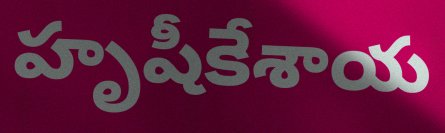
హృషీకేశాయ